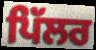
ਪਿੱਲਰ